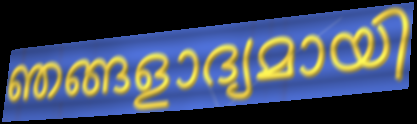
ഞങ്ങളാദ്യമായി